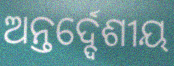
ଅନ୍ତର୍ଦ୍ଦେଶୀୟ